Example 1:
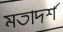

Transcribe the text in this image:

মতাদৰ্শ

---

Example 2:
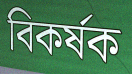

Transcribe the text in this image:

বিকৰ্ষক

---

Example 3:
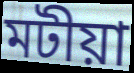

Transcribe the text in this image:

মটীয়া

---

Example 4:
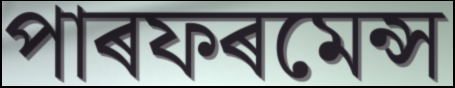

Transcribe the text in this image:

পাৰফৰমেন্স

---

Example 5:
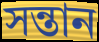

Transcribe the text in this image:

সন্তান